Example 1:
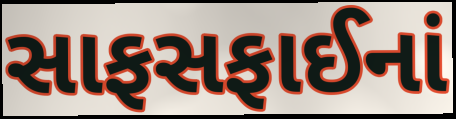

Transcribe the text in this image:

સાફસફાઈનાં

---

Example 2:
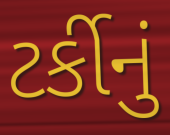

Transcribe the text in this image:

ટર્કીનું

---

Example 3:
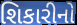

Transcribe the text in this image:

શિકારીનો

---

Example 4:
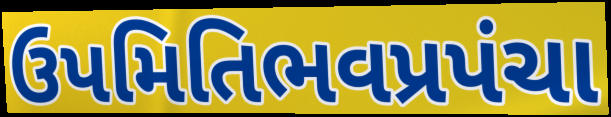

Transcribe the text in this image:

ઉપમિતિભવપ્રપંચા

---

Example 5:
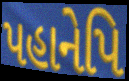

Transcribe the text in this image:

પહાનેપિ